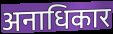
अनाधिकार